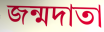
জন্মদাতা